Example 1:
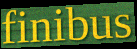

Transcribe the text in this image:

finibus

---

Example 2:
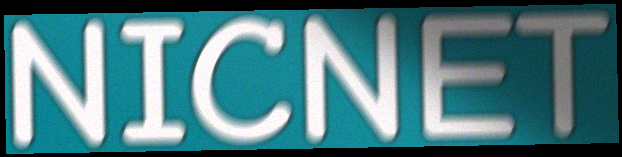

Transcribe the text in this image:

NICNET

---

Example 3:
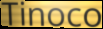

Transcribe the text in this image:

Tinoco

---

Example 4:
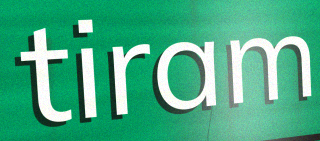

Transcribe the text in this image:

tiram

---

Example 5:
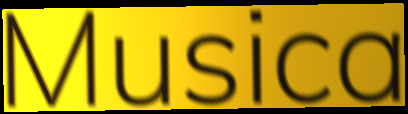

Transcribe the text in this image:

Musica